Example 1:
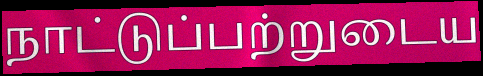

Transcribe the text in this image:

நாட்டுப்பற்றுடைய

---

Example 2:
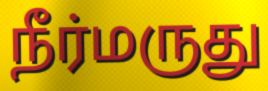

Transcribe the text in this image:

நீர்மருது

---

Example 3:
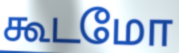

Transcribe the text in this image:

கூடமோ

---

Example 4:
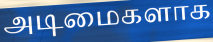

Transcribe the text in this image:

அடிமைகளாக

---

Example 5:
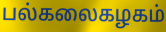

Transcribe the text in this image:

பல்கலைகழகம்